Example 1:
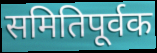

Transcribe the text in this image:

समितिपूर्वक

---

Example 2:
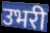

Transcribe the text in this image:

उभरी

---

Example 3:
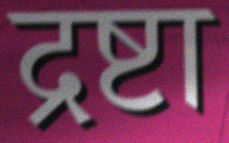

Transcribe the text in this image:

द्रष्टा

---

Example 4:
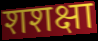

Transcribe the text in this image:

शशक्षा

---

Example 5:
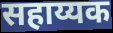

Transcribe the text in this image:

सहाय्यक